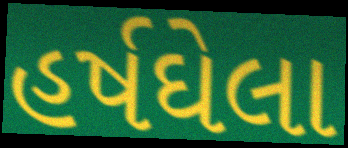
હર્ષઘેલા